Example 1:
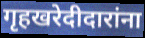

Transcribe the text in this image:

गृहखरेदीदारांना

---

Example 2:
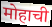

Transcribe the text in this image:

मोहाची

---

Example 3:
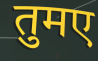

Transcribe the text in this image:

तुमए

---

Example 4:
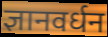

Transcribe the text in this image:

ज्ञानवर्धन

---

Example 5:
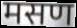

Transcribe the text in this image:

मसण